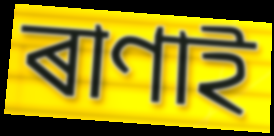
ৰাণাই